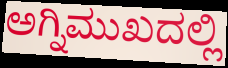
ಅಗ್ನಿಮುಖದಲ್ಲಿ